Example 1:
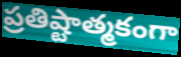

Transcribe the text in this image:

ప్రతిష్టాత్మకంగా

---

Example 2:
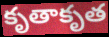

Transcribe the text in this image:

కృతాకృత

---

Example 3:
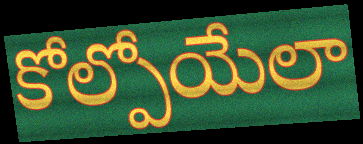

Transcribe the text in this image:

కోల్పోయేలా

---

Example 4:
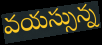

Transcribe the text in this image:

వయస్సున్న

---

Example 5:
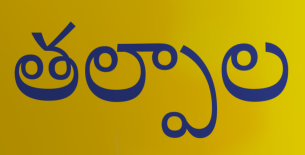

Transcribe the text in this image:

తల్పాల